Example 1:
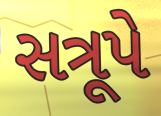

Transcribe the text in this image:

સત્રૂપે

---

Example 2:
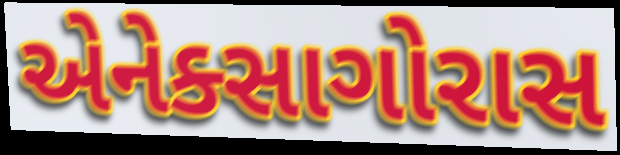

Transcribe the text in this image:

એનેક્સાગોરાસ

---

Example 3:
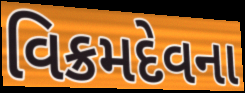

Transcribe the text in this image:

વિક્રમદેવના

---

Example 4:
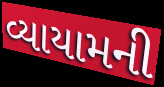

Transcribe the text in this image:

વ્યાયામની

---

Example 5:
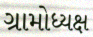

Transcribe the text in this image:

ગ્રામોધ્યક્ષ